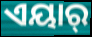
ଏୟାର୍